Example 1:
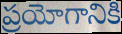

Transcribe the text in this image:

ప్రయోగానికి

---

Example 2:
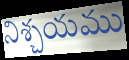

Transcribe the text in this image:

నిశ్చయము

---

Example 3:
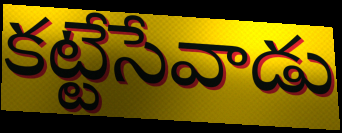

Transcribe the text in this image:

కట్టేసేవాడు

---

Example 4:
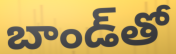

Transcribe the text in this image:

బాండ్‌తో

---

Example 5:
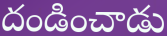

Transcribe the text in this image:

దండించాడు